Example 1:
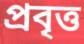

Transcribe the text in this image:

প্রবৃত্ত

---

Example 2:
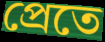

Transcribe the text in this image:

প্রেতে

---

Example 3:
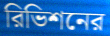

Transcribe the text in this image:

রিভিশনের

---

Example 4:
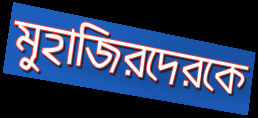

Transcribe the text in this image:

মুহাজিরদেরকে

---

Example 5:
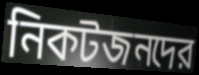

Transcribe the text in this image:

নিকটজনদের